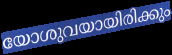
യോശുവയായിരിക്കും